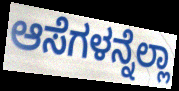
ಆಸೆಗಳನ್ನೆಲ್ಲಾ